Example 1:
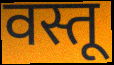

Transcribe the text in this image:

वस्तू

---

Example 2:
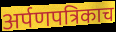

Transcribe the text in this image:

अर्पणपत्रिकाच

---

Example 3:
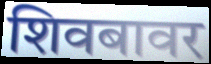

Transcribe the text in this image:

शिवबावर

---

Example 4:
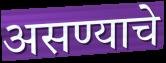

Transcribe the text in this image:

असण्याचे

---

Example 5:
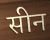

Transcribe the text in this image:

सीन